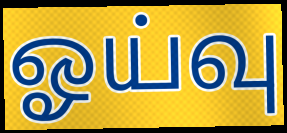
ஓய்வு